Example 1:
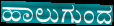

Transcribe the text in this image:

ಹಾಲುಗುಂದ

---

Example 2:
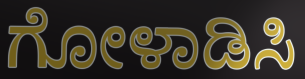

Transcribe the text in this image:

ಗೋಳಾಡಿಸಿ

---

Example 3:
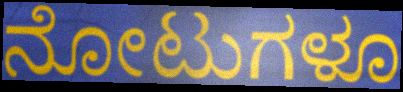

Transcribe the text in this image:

ನೋಟುಗಳೂ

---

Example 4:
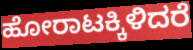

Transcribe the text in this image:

ಹೋರಾಟಕ್ಕಿಳಿದರೆ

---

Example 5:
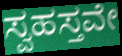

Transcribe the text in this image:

ಸ್ವಹಸ್ತವೇ